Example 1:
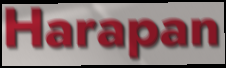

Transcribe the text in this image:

Harapan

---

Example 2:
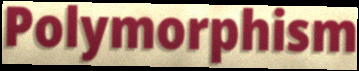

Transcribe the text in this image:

Polymorphism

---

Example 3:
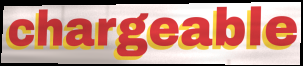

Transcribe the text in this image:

chargeable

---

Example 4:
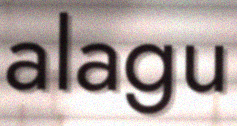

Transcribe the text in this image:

alagu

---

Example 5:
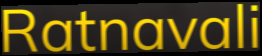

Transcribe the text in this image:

Ratnavali